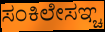
ಸಂಕಿಲೇಸಞ್ಚ